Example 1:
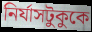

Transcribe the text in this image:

নির্যাসটুকুকে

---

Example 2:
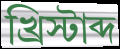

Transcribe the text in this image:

খ্রিস্টাব্দ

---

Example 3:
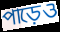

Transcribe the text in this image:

পাড়েও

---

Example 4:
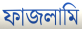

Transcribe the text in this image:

ফাজলামি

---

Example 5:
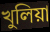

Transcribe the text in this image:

খুলিয়া